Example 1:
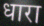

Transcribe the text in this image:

धारा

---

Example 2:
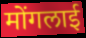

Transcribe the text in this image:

मोंगलाई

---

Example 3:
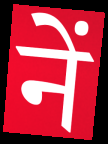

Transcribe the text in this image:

नें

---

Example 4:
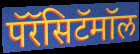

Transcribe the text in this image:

पॅरॅसिटॅमॉल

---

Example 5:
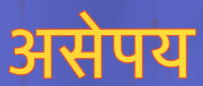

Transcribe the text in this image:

असेपय